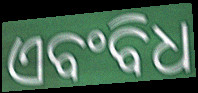
ଏବଂବିଧ